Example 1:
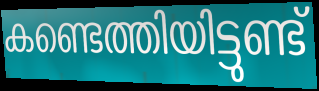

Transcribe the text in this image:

കണ്ടെത്തിയിട്ടുണ്ട്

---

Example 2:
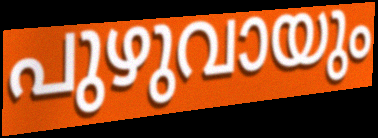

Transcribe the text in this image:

പുഴുവായും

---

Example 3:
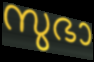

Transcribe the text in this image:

സുഭാ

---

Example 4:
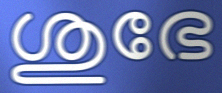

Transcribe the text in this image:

ശുഭേ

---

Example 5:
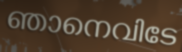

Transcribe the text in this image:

ഞാനെവിടേ